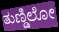
ತುಣ್ಡಿಲೋ